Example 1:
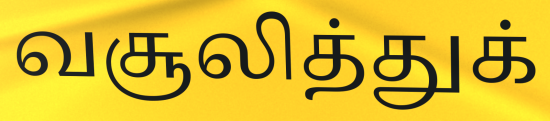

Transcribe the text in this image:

வசூலித்துக்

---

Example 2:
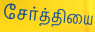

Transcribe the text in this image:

சேர்த்தியை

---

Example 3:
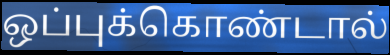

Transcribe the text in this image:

ஒப்புக்கொண்டால்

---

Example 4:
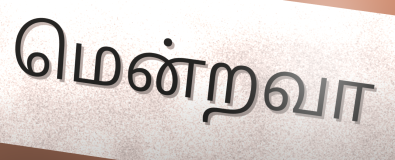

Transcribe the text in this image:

மென்றவா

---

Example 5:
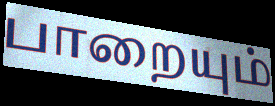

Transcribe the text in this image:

பாறையும்